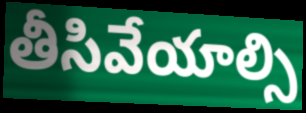
తీసివేయాల్సి